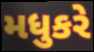
મધુકરે